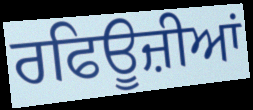
ਰਫਿਊਜ਼ੀਆਂ